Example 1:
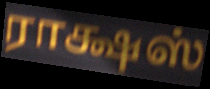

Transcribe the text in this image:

ராக்ஷஸ்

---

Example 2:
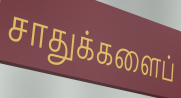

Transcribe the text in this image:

சாதுக்களைப்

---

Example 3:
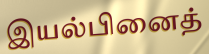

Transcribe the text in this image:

இயல்பினைத்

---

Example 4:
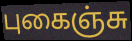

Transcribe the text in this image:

புகைஞ்சு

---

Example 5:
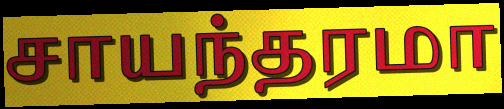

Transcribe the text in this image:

சாயந்தரமா